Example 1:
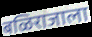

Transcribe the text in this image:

बळिराजाला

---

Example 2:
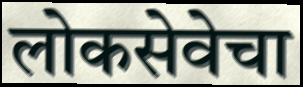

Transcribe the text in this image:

लोकसेवेचा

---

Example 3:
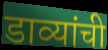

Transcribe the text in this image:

डाव्यांची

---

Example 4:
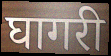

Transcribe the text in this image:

घागरी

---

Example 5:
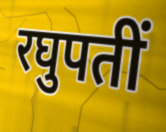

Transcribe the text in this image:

रघुपतीं